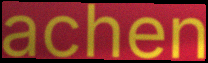
achen